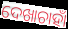
ଦେଖାଚାହାଁ